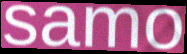
samo